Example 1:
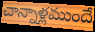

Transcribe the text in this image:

చాన్నాళ్లముందే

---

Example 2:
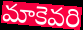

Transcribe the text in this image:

మాకెవరి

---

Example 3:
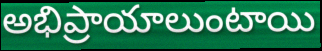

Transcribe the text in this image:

అభిప్రాయాలుంటాయి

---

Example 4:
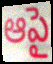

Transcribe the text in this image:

ఆపై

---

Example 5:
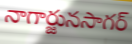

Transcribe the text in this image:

నాగార్జునసాగర్